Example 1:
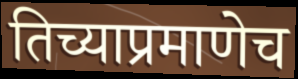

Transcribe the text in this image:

तिच्याप्रमाणेच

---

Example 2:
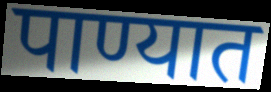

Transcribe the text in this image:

पाण्यात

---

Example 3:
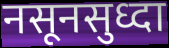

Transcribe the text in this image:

नसूनसुध्दा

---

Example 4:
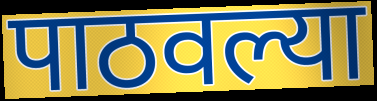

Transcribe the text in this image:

पाठवल्या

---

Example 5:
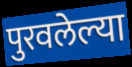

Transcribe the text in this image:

पुरवलेल्या